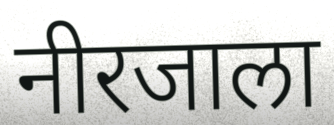
नीरजाला